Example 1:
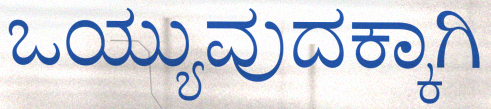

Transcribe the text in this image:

ಒಯ್ಯುವುದಕ್ಕಾಗಿ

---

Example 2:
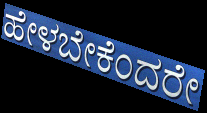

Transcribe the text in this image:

ಹೇಳಬೇಕೆಂದರೇ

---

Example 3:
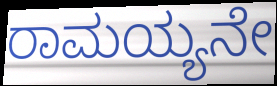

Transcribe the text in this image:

ರಾಮಯ್ಯನೇ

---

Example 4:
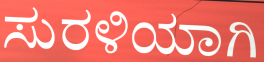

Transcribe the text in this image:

ಸುರಳಿಯಾಗಿ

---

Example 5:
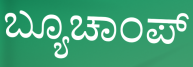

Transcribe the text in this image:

ಬ್ಯೂಚಾಂಪ್